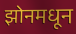
झोनमधून